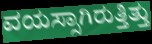
ವಯಸ್ಸಾಗಿರುತ್ತಿತ್ತು